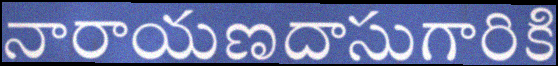
నారాయణదాసుగారికి